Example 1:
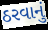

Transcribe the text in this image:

ઠરવાનું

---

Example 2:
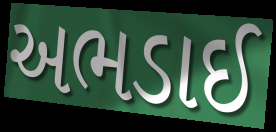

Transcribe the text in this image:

અભડાઈ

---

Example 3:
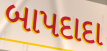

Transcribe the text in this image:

બાપદાદા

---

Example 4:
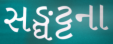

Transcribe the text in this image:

સઙ્ઘટ્ટના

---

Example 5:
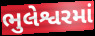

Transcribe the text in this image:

ભુલેશ્વરમાં